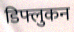
डिफ्लुकन